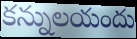
కన్నులయందు